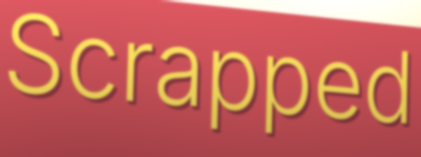
Scrapped